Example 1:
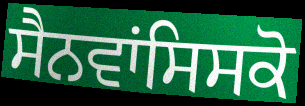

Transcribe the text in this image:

ਸੈਨਵਾਂਸਿਸਕੋ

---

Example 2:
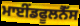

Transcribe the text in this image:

ਮਾਈਂਡਫੂਲਨੈੱਸ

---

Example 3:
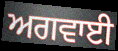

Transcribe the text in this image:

ਅਗਵਾਈ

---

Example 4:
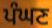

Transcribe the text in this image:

ਪੰਘਣ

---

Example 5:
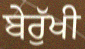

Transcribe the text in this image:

ਬੇਰੁੱਖੀ